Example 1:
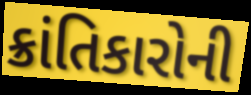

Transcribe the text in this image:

ક્રાંતિકારોની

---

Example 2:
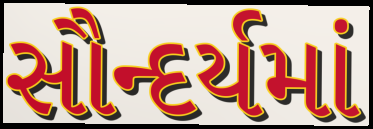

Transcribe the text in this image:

સૌન્દર્યમાં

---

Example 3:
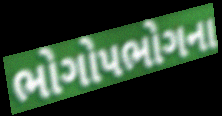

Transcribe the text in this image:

ભોગોપભોગના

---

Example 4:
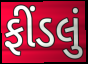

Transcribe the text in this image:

ફીંડલું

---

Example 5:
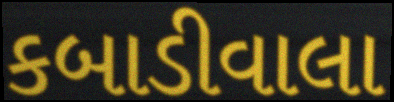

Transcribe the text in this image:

કબાડીવાલા